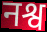
नश्व